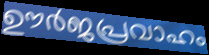
ഊർജപ്രവാഹം